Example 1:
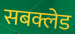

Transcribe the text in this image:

सबक्लेड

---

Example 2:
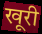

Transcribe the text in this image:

खूरी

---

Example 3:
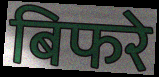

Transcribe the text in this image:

बिफरे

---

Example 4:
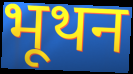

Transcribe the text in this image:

भूथन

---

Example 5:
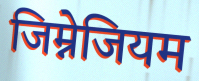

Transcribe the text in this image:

जिम्नेजियम